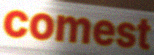
comest